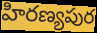
హిరణ్యపుర